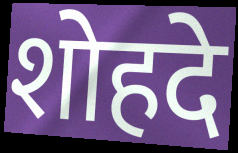
शोहदे